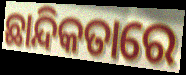
ଛାନ୍ଦିକତାରେ